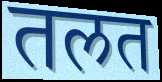
तलत